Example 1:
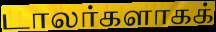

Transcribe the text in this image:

டாலர்களாகக்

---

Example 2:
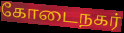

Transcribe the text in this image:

கோடைநகர்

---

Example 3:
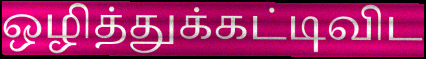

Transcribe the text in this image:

ஒழித்துக்கட்டிவிட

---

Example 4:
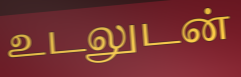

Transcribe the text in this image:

உடலுடன்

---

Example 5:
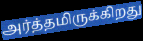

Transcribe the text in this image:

அர்த்தமிருக்கிறது